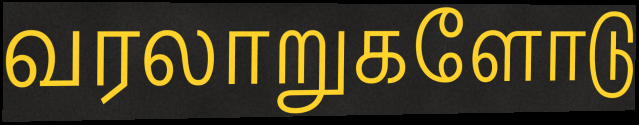
வரலாறுகளோடு